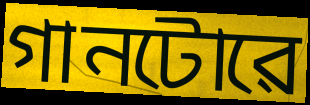
গানটোৱে